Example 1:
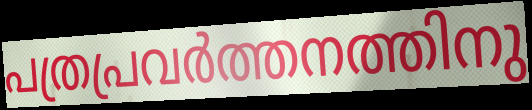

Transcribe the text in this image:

പത്രപ്രവർത്തനത്തിനു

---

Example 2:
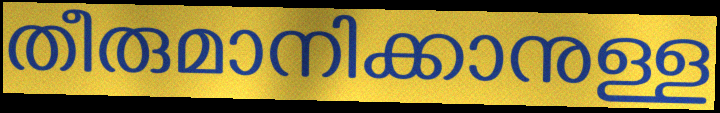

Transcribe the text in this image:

തീരുമാനിക്കാനുള്ള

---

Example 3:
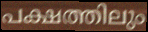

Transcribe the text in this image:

പക്ഷത്തിലും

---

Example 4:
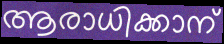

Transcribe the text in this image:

ആരാധിക്കാന്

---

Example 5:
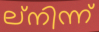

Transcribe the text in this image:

ല്നിന്ന്